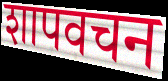
शापवचन